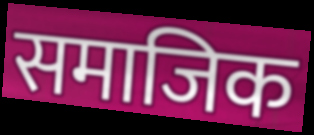
समाजिक